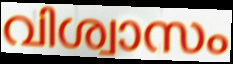
വിശ്വാസം